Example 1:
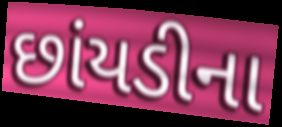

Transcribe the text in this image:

છાંયડીના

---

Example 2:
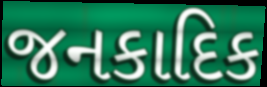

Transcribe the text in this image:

જનકાદિક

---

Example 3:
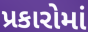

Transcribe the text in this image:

પ્રકારોમાં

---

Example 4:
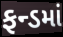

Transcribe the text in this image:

ફન્ડમાં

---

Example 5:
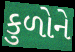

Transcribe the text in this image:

કુળોને